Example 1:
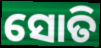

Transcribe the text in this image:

ସୋତି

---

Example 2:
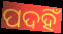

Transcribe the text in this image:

ପଦହିଁ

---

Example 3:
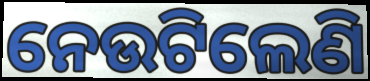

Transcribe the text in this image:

ନେଉଟିଲେଣି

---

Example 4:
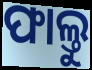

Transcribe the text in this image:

ଫାଲ୍ତୁ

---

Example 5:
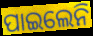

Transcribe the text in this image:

ପାଇଲେନି